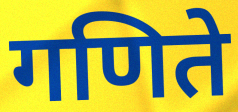
गणिते